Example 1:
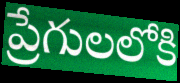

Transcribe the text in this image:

ప్రేగులలోకి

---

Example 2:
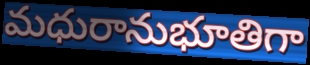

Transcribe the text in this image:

మధురానుభూతిగా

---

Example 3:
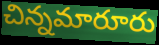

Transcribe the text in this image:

చిన్నమారూరు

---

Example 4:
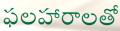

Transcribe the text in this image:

ఫలహారాలతో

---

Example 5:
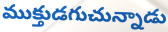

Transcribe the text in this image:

ముక్తుడగుచున్నాడు